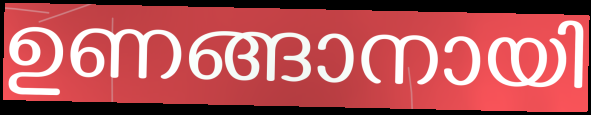
ഉണങ്ങാനായി